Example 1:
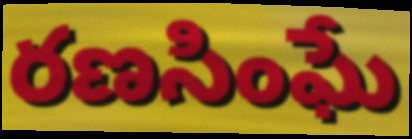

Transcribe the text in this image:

రణసింఘే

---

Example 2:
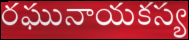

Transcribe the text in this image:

రఘునాయకస్య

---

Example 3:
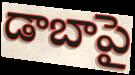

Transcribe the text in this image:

డాబాపై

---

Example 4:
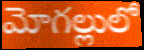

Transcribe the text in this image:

మోగల్లులో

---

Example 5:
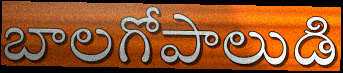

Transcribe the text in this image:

బాలగోపాలుడి